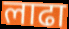
लाढा